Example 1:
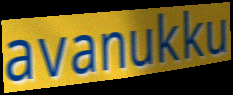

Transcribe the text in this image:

avanukku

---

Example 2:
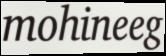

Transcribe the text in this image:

mohineeg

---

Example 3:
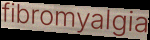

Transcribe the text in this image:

fibromyalgia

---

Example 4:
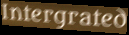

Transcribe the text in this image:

Intergrated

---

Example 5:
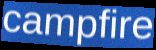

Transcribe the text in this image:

campfire